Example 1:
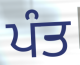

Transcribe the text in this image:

ਪੰਤ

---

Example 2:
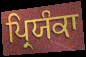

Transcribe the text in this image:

ਪ੍ਰਿਯੰਕਾ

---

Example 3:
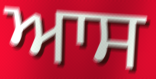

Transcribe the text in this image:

ਆਸ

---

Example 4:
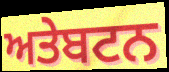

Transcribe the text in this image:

ਅਤੇਬਟਨ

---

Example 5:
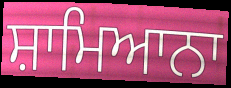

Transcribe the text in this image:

ਸ਼ਾਮਿਆਨਾ